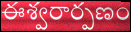
ఈశ్వరార్పణం